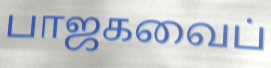
பாஜகவைப்